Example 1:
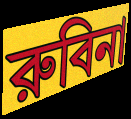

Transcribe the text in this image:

রুবিনা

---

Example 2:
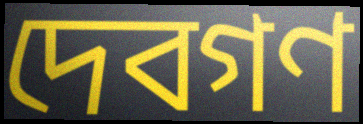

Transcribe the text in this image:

দেবগণ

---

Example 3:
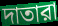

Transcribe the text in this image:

দাতারা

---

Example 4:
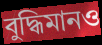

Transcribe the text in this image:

বুদ্ধিমানও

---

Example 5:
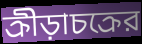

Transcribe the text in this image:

ক্রীড়াচক্রের